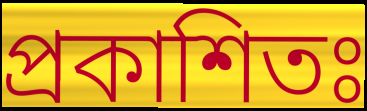
প্রকাশিতঃ